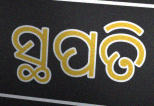
ସ୍ଥପତି